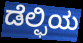
ಡೆಲ್ಫಿಯ